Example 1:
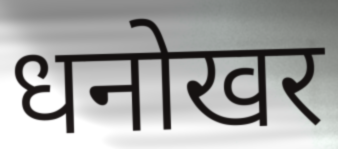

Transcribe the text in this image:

धनोखर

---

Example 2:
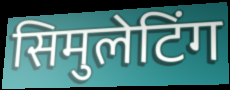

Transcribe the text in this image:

सिमुलेटिंग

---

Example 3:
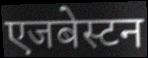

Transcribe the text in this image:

एजबेस्टन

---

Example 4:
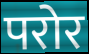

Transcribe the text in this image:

परोर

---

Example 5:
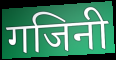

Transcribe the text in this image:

गजिनी